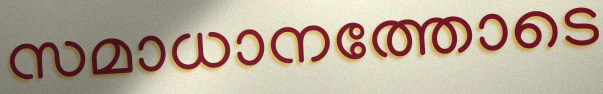
സമാധാനത്തോടെ